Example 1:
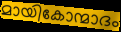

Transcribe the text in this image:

മായികോന്മാദം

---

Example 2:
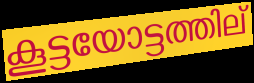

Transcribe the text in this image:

കൂട്ടയോട്ടത്തില്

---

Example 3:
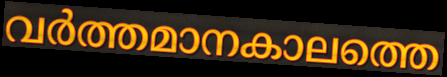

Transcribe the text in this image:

വർത്തമാനകാലത്തെ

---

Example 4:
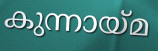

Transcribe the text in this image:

കുന്നായ്മ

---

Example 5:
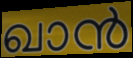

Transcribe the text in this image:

ഖാൻ